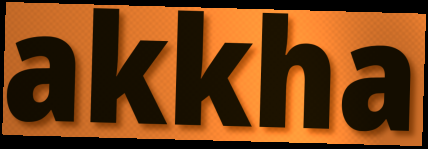
akkha